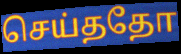
செய்ததோ